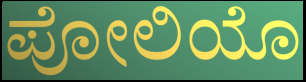
ಪೋಲಿಯೊ